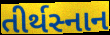
તીર્થસ્નાન